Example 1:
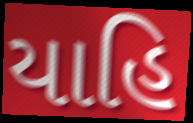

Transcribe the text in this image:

યાહિ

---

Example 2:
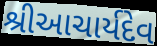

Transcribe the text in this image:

શ્રીઆચાર્યદેવ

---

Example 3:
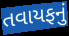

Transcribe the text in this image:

તવાયફનું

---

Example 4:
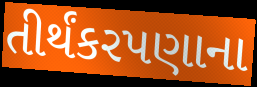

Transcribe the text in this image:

તીર્થંકરપણાના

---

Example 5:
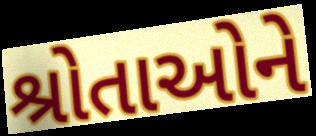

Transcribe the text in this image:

શ્રોતાઓને